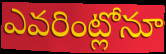
ఎవరింట్లోనూ